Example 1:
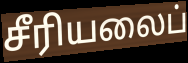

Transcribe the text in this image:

சீரியலைப்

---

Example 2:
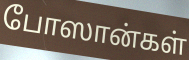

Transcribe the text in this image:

போஸான்கள்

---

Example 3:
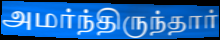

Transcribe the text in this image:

அமர்ந்திருந்தார்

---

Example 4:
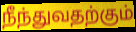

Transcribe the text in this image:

நீந்துவதற்கும்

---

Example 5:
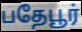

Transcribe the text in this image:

பதேபூர்